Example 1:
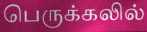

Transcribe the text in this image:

பெருக்கலில்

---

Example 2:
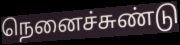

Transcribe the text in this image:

நெனைச்சுண்டு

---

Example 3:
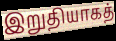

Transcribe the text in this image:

இறுதியாகத்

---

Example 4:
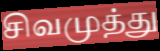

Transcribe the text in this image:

சிவமுத்து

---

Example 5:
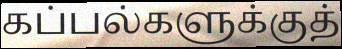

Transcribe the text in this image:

கப்பல்களுக்குத்